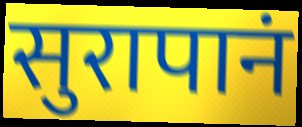
सुरापानं